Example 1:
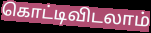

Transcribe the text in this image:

கொட்டிவிடலாம்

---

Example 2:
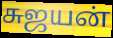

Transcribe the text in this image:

சுஜயன்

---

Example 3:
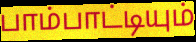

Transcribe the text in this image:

பாம்பாட்டியும்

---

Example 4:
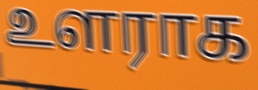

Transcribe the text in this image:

உளராக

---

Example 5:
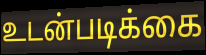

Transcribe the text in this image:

உடன்படிக்கை